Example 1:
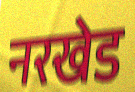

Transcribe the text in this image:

नरखेड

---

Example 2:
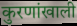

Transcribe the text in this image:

कुरणांखाली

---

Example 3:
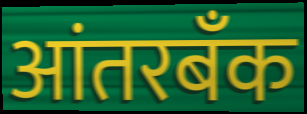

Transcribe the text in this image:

आंतरबँक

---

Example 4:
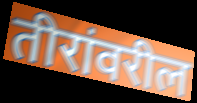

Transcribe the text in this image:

तीरांवरील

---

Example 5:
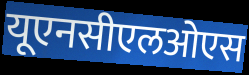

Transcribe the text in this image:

यूएनसीएलओएस